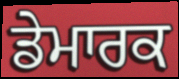
ਡੇਮਾਰਕ